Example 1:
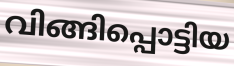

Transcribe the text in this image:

വിങ്ങിപ്പൊട്ടിയ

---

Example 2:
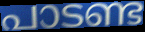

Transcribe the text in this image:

പാടണ്ട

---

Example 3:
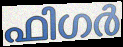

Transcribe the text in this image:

ഫിഗർ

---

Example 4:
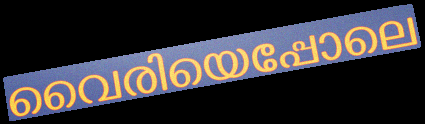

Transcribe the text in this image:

വൈരിയെപ്പോലെ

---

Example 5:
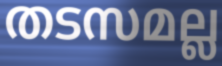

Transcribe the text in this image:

തടസമല്ല